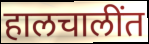
हालचालींत